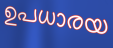
ഉപധാരയ